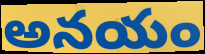
అనయం